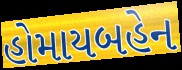
હોમાયબહેન